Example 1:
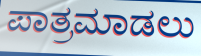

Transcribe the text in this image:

ಪಾತ್ರಮಾಡಲು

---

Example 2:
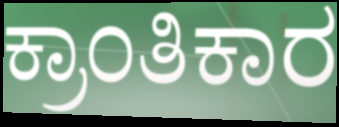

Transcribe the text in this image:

ಕ್ರಾಂತಿಕಾರ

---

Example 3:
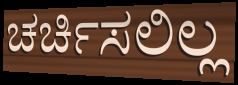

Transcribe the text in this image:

ಚರ್ಚಿಸಲಿಲ್ಲ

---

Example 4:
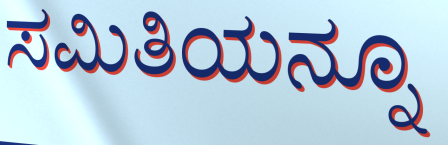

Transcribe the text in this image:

ಸಮಿತಿಯನ್ನೂ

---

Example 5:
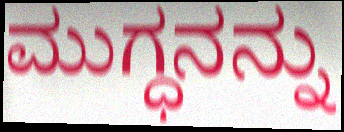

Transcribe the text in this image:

ಮುಗ್ಧನನ್ನು